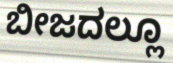
ಬೀಜದಲ್ಲೂ